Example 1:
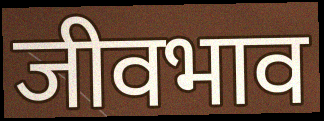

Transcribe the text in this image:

जीवभाव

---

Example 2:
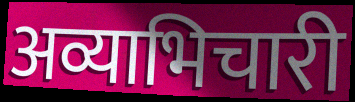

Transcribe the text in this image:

अव्याभिचारी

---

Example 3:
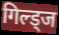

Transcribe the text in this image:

गिल्ड्ज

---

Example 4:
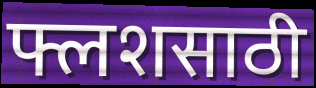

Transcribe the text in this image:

फ्लशसाठी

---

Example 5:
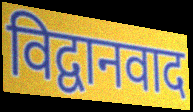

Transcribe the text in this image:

विद्वानवाद